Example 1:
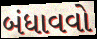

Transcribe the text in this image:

બંધાવવો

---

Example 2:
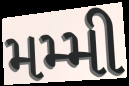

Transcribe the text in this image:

મમ્મી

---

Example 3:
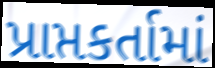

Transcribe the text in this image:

પ્રાપ્તકર્તામાં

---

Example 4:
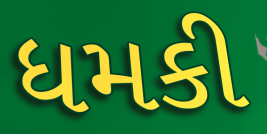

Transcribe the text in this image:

ધમકી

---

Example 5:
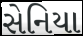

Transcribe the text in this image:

સેનિયા